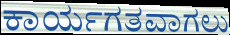
ಕಾರ್ಯಗತವಾಗಲು